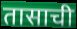
तासाची